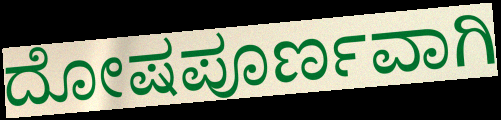
ದೋಷಪೂರ್ಣವಾಗಿ